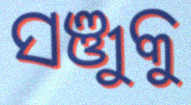
ସଞ୍ଜୁକୁ